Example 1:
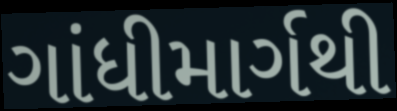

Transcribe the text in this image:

ગાંધીમાર્ગથી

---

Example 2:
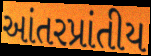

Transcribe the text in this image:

આંતરપ્રાંતીય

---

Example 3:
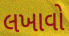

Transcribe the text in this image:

લખાવો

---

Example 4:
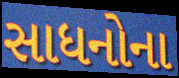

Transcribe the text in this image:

સાધનોના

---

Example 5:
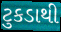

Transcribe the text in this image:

ટુકડાથી